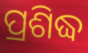
ପ୍ରଶିଦ୍ଧ